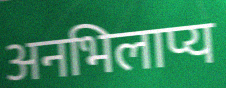
अनभिलाप्य